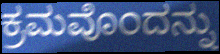
ಕ್ರಮವೊಂದನ್ನು